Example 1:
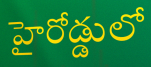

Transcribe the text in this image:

హైరోడ్డులో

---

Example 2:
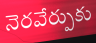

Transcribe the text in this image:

నెరవేర్పుకు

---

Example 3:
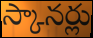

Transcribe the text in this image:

స్కానర్లు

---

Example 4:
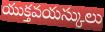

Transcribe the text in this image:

యుక్తవయస్కులు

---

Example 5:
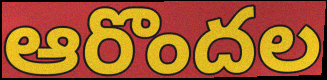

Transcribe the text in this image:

ఆరొందల